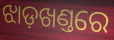
ଝାଡ଼ଖଣ୍ତରେ